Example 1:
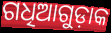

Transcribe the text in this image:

ଗଧିଆଗୁଡ଼ାକ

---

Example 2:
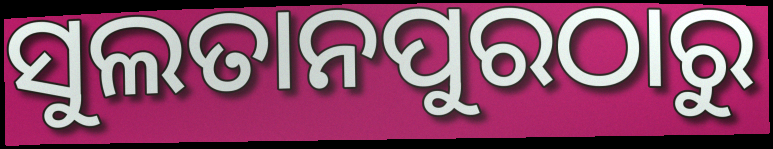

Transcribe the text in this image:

ସୁଲତାନପୁରଠାରୁ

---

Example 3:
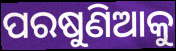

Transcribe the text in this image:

ପରଷୁଣିଆକୁ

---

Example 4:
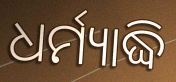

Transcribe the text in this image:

ଧର୍ମ୍ୟାଦ୍ଧି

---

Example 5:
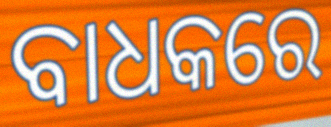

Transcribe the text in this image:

ବାଧକରେ